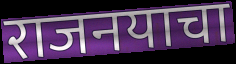
राजनयाचा